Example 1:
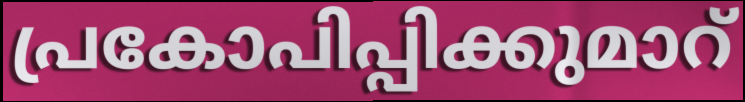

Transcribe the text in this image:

പ്രകോപിപ്പിക്കുമാറ്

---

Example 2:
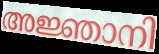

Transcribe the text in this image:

അജ്ഞാനി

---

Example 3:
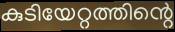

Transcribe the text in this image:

കുടിയേറ്റത്തിന്റെ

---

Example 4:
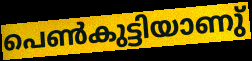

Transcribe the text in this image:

പെൺകുട്ടിയാണു്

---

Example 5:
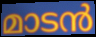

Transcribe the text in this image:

മാടൻ